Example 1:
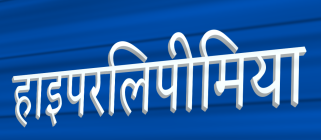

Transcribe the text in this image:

हाइपरलिपीमिया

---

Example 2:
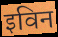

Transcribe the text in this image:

इविन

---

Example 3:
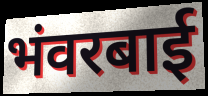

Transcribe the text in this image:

भंवरबाई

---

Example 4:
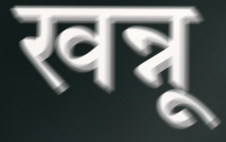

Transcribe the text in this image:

खन्नू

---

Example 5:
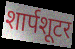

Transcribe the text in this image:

शार्पशूटर